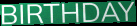
BIRTHDAY